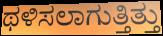
ಥಳಿಸಲಾಗುತ್ತಿತ್ತು